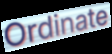
Ordinate